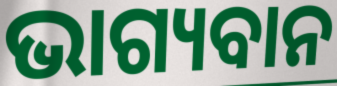
ଭାଗ୍ୟବାନ